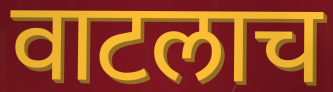
वाटलाच